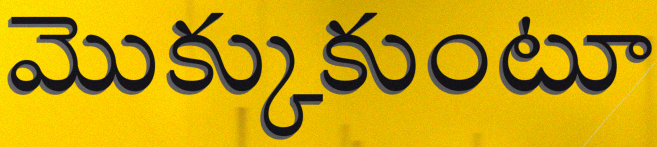
మొక్కుకుంటూ